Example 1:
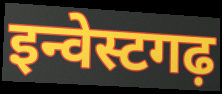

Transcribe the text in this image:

इन्वेस्टगढ़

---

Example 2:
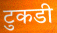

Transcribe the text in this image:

टुकडी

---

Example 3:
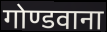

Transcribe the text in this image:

गोण्डवाना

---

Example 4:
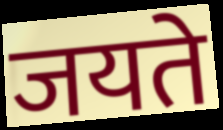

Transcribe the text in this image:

जयते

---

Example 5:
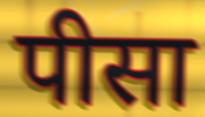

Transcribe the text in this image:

पीसा